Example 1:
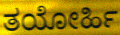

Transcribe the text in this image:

ತಯೋರ್ಹಿ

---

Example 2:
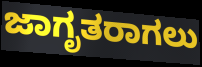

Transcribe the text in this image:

ಜಾಗೃತರಾಗಲು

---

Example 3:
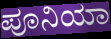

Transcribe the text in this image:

ಪೂನಿಯಾ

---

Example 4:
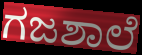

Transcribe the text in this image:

ಗಜಶಾಲೆ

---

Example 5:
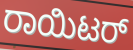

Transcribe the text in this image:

ರಾಯಿಟರ್